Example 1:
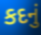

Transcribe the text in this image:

કદનું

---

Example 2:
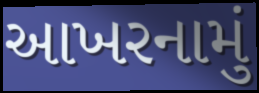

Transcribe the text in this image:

આખરનામું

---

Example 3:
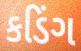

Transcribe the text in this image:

કડિંગ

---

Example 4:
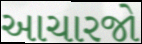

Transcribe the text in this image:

આચારજો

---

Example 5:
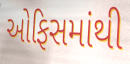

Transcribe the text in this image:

ઓફિસમાંથી